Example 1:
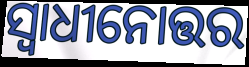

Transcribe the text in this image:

ସ୍ୱାଧୀନୋତ୍ତର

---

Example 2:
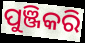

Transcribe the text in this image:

ପୁଞ୍ଜିକରି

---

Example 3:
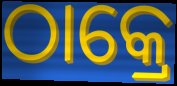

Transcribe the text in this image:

ଠାକ୍ରେ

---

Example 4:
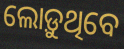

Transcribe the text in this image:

ଲୋଡ଼ୁଥିବେ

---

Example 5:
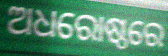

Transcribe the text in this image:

ଅଧରୋଷ୍ଠରେ